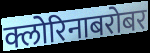
क्लोरिनाबरोबर